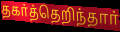
தகர்த்தெறிந்தார்